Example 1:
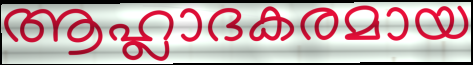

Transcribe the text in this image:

ആഹ്ലാദകരമായ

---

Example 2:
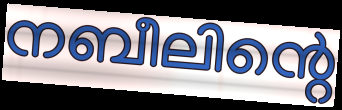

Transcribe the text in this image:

നബീലിന്റെ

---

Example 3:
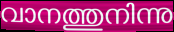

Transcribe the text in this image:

വാനത്തുനിന്നു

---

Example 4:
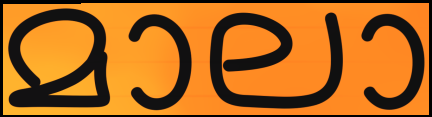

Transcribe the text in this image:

മാലാ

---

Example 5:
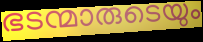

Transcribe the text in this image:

ഭടന്മാരുടെയും